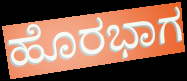
ಹೊರಭಾಗ